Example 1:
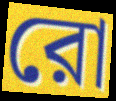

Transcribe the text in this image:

রো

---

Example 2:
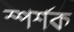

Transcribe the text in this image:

স্পর্শক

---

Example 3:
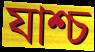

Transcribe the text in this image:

যাশ্চ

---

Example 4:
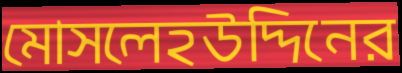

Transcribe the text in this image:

মোসলেহউদ্দিনের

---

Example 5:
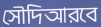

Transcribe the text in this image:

সৌদিআরবে